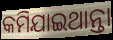
କମିଯାଇଥାନ୍ତା